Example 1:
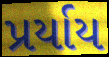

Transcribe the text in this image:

પ્રર્યાય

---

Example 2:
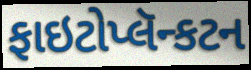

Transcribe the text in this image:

ફાઇટોપ્લૅન્કટન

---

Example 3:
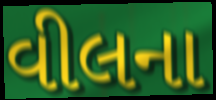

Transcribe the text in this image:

વીલના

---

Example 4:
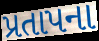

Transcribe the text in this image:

પ્રતાપના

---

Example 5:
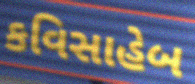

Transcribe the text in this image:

કવિસાહેબ